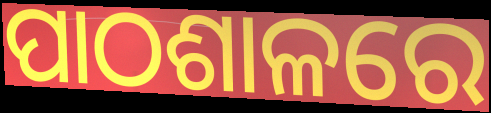
ପାଠଶାଳରେ